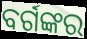
ବର୍ଗଙ୍କର